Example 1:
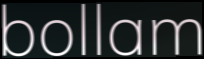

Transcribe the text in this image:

bollam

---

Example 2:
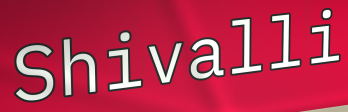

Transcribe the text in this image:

Shivalli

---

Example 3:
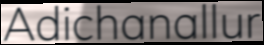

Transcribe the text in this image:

Adichanallur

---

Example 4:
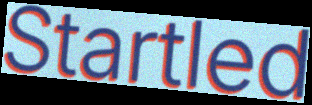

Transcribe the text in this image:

Startled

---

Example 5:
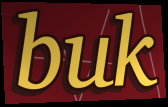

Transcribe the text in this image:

buk